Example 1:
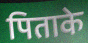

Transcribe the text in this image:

पिताके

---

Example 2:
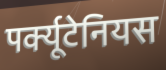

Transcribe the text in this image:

पर्क्यूटेनियस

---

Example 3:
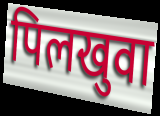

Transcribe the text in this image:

पिलखुवा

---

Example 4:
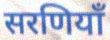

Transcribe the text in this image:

सरणियाँ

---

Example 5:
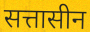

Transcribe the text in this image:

सत्तासीन